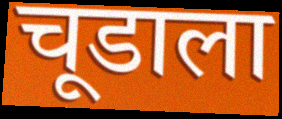
चूडाला